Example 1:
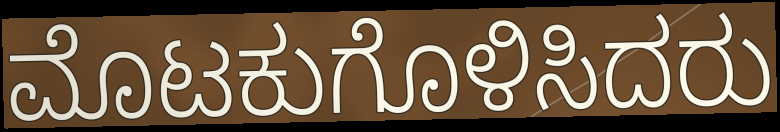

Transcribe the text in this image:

ಮೊಟಕುಗೊಳಿಸಿದರು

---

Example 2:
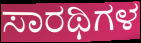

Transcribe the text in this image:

ಸಾರಥಿಗಳ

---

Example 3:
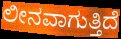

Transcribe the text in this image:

ಲೀನವಾಗುತ್ತಿದೆ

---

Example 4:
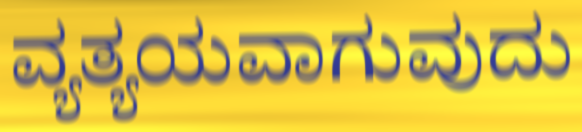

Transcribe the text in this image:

ವ್ಯತ್ಯಯವಾಗುವುದು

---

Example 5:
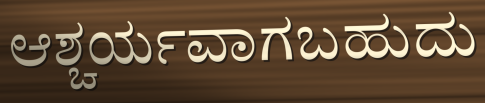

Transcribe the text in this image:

ಆಶ್ಚರ್ಯವಾಗಬಹುದು